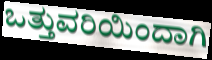
ಒತ್ತುವರಿಯಿಂದಾಗಿ